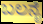
ಬಲನೈ